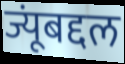
ज्यूंबद्दल